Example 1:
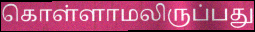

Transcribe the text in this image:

கொள்ளாமலிருப்பது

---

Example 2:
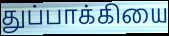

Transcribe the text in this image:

துப்பாக்கியை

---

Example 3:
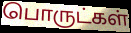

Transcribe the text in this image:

பொருட்கள்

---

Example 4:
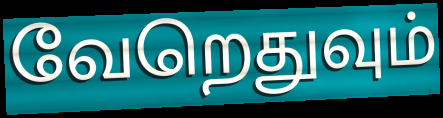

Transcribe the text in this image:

வேறெதுவும்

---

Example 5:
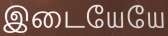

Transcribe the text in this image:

இடையேயே